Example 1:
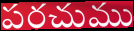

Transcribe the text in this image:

పరచుము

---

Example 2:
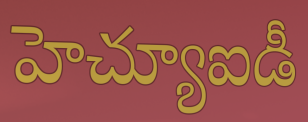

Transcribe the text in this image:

హెచ్యూఐడీ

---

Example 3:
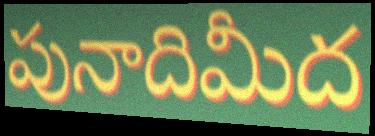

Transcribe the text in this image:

పునాదిమీద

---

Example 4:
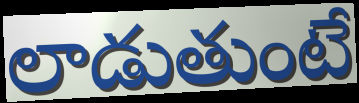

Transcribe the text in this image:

లాడుతుంటే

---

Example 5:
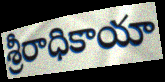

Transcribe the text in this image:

శ్రీరాధికాయా